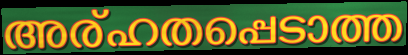
അര്ഹതപ്പെടാത്ത